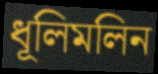
ধূলিমলিন